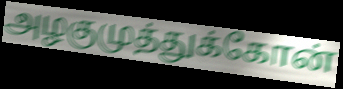
அழகுமுத்துக்கோன்